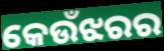
କେଉଁଝରର